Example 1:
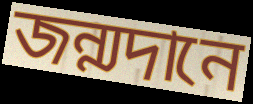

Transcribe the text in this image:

জন্মদানে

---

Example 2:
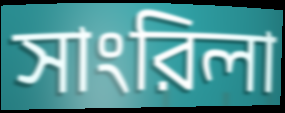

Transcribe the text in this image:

সাংরিলা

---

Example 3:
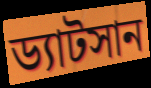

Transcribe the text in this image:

ড্যাটসান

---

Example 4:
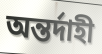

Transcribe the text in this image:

অন্তর্দাহী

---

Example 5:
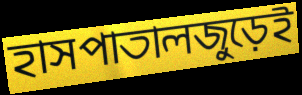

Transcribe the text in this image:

হাসপাতালজুড়েই